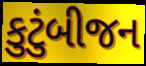
કુટુંબીજન